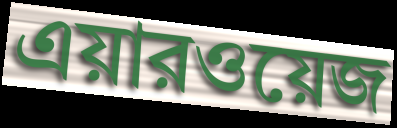
এয়ারওয়েজ